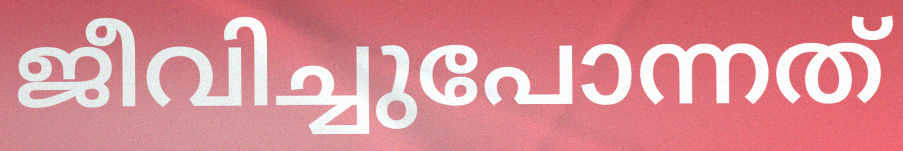
ജീവിച്ചുപോന്നത്